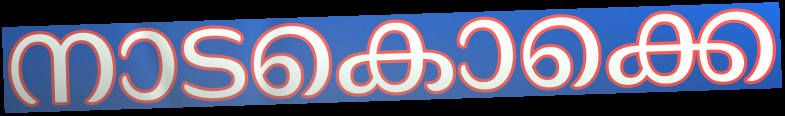
നാടകൊക്കെ